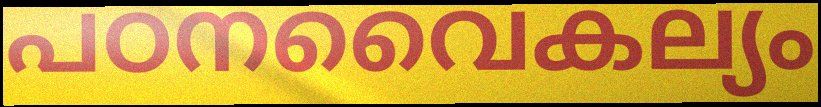
പഠനവൈകല്യം